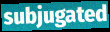
subjugated